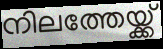
നിലത്തേയ്ക്ക്